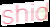
shid